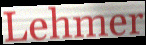
Lehmer